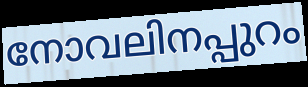
നോവലിനപ്പുറം